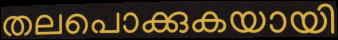
തലപൊക്കുകയായി